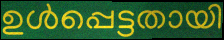
ഉൾപ്പെട്ടതായി